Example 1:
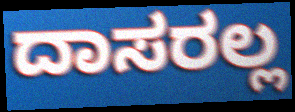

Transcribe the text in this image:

ದಾಸರಲ್ಲ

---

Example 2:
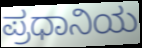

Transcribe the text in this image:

ಪ್ರಧಾನಿಯ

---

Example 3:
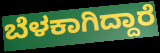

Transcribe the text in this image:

ಬೆಳಕಾಗಿದ್ದಾರೆ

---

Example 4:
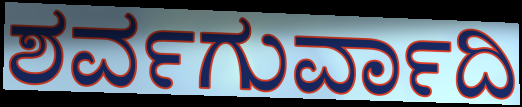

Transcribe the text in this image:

ಶರ್ವಗುರ್ವಾದಿ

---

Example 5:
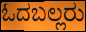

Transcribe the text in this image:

ಓದಬಲ್ಲರು